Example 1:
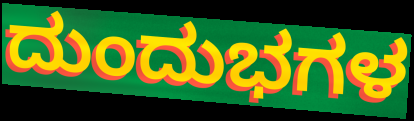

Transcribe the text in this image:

ದುಂದುಭಗಳ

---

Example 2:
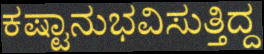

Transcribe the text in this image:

ಕಷ್ಟಾನುಭವಿಸುತ್ತಿದ್ದ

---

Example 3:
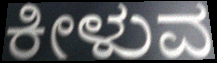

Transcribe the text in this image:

ಕೀಳುವ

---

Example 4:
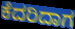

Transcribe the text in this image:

ಕೆದರಿದಾಗ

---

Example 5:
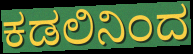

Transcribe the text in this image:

ಕಡಲಿನಿಂದ